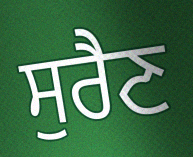
ਸੁਰੈਣ